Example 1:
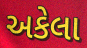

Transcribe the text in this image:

અકેલા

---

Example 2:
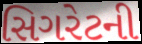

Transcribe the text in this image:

સિગરેટની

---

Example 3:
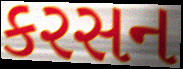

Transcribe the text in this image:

કરસન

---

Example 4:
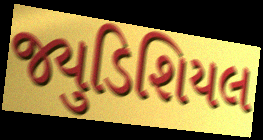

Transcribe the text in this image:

જ્યુડિશિયલ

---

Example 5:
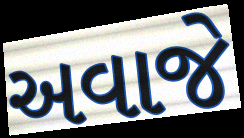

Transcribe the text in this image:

અવાજે